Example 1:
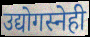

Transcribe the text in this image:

उद्योगस्नेही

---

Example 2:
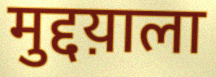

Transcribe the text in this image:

मुद्दय़ाला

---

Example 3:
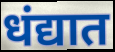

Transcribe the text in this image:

धंद्यात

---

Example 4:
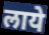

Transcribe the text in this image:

लाये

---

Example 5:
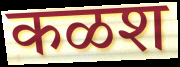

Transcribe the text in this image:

कळश